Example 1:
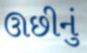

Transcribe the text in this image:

ઊછીનું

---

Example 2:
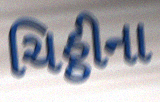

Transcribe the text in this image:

ચિઠ્ઠીના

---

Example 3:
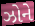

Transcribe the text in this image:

ઝોને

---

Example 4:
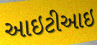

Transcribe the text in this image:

આઇટીઆઇ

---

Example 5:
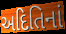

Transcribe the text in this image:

અદિતિનાં